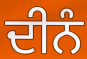
ਦੀਨੰ